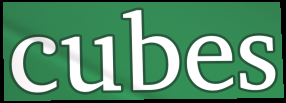
cubes